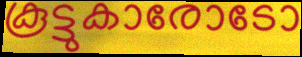
കൂട്ടുകാരോടോ